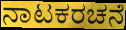
ನಾಟಕರಚನೆ